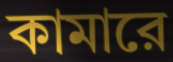
কামারে